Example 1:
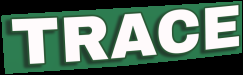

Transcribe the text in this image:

TRACE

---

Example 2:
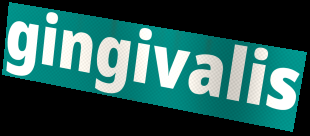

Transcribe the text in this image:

gingivalis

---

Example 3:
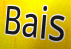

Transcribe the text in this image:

Bais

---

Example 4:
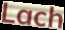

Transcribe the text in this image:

Lach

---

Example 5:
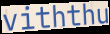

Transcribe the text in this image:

viththu